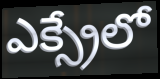
ఎక్స్రేలో